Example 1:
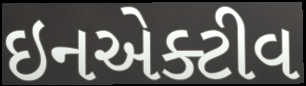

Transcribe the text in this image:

ઇનએક્ટીવ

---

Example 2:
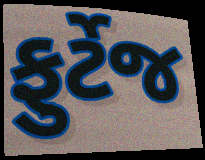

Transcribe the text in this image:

ફુર્ટેજ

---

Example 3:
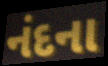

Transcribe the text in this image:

નંદના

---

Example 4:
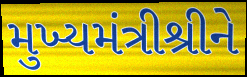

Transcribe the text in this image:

મુખ્યમંત્રીશ્રીને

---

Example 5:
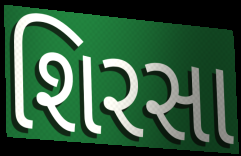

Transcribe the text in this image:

શિરસા